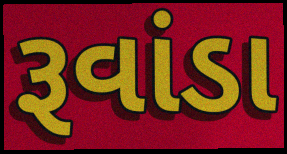
રૂવાંડા